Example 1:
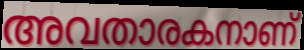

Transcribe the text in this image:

അവതാരകനാണ്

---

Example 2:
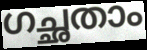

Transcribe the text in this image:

ഗച്ഛതാം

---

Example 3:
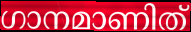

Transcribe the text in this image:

ഗാനമാണിത്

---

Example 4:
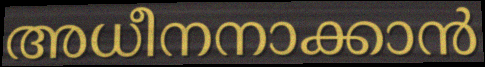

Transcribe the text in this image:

അധീനനാക്കാൻ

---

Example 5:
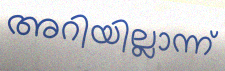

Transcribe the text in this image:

അറിയില്ലാന്ന്